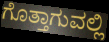
ಗೊತ್ತಾಗುವಲ್ಲಿ